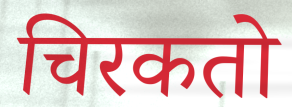
चिरकतो